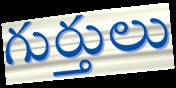
గుర్తులు